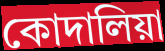
কোদালিয়া